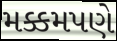
મક્કમપણે